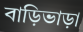
বাড়িভাড়া